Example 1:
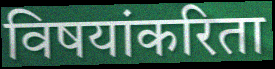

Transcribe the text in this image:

विषयांकरिता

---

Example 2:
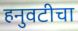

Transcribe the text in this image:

हनुवटीचा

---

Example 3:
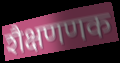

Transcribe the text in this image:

शैक्षणणक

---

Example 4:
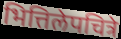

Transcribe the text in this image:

भित्तिलेपचित्रे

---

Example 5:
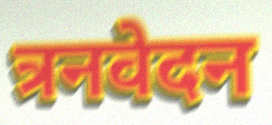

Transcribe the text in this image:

त्रनवेदन